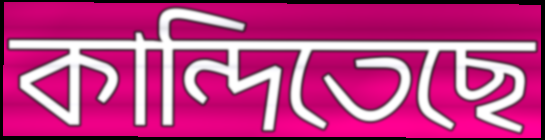
কান্দিতেছে